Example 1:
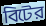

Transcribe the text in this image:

বিটের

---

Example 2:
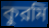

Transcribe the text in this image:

কুরমি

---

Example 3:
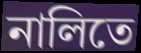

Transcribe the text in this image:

নালিতে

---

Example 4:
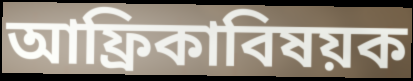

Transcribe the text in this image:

আফ্রিকাবিষয়ক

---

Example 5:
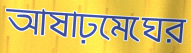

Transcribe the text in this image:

আষাঢ়মেঘের